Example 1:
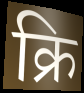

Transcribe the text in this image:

क्रि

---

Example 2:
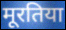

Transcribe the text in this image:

मूरतिया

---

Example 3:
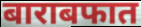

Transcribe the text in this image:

बाराबफात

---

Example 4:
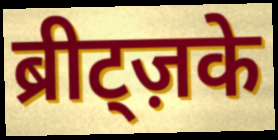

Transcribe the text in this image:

ब्रीट्ज़के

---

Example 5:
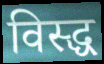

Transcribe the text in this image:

विस्द्ध